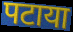
पटाया